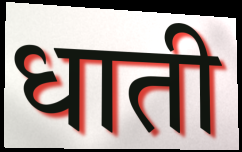
धाती